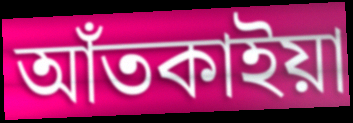
আঁতকাইয়া